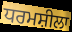
ਧਰਮਸ਼ੀਲਾ